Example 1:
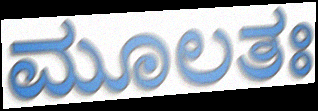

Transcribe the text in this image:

ಮೂಲತಃ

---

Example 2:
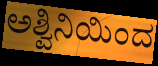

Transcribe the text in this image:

ಅಶ್ವಿನಿಯಿಂದ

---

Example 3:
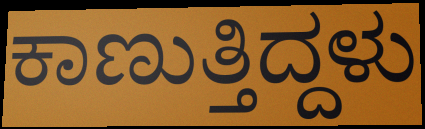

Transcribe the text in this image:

ಕಾಣುತ್ತಿದ್ದಳು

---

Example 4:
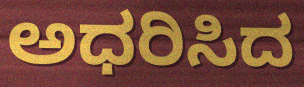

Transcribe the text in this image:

ಅಧರಿಸಿದ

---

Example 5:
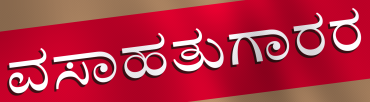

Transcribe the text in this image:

ವಸಾಹತುಗಾರರ